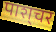
पाश्चर